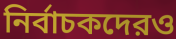
নির্বাচকদেরও